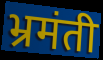
भ्रमंती